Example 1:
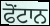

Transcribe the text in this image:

ਫੋਂਟਾਨ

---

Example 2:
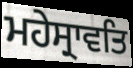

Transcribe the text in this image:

ਮਹੇਸ੍ਰਾਵਤਿ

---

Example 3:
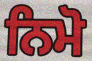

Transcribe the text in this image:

ਨਿਮੋ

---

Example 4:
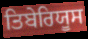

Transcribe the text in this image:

ਤਿਬੇਰਿਯੂਸ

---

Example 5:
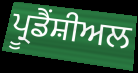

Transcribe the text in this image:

ਪ੍ਰੂਡੈਂਸ਼ੀਅਲ